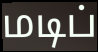
மடிப்